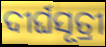
ଦୀର୍ଘସୂତ୍ରୀ